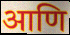
आणि